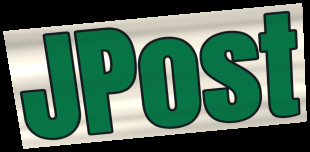
JPost